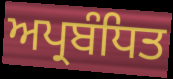
ਅਪ੍ਰਬੰਧਿਤ